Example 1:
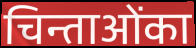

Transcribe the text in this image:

चिन्ताओंका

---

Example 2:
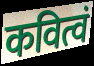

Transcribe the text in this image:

कवित्वं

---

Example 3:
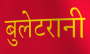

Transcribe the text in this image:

बुलेटरानी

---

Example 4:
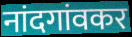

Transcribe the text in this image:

नांदगांवकर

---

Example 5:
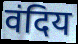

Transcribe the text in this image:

वंदिय